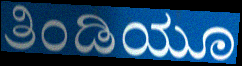
ತಿಂಡಿಯೂ